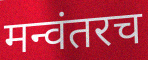
मन्वंतरच